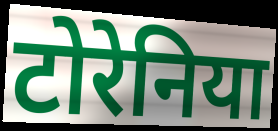
टोरेनिया